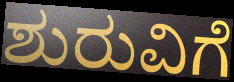
ಶುರುವಿಗೆ